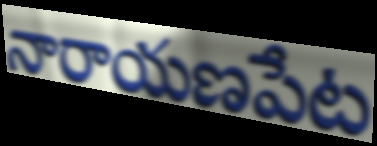
నారాయణపేట